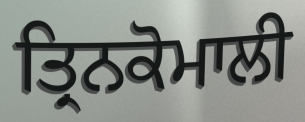
ਤ੍ਰਿਨਕੋਮਾਲੀ